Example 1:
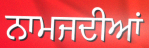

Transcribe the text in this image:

ਨਾਮਜਦੀਆਂ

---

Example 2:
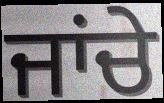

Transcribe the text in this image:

ਜਾਂਚੇ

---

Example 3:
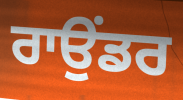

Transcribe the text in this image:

ਰਾਉਂਡਰ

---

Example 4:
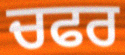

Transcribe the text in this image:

ਚਫਰ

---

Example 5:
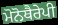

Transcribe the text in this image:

ਮੋਨੋਥੈਰੇਪੀ